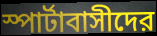
স্পার্টাবাসীদের